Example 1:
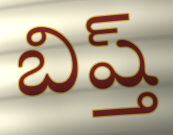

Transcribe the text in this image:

బిష్త్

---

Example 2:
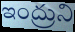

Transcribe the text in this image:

ఇంద్రుని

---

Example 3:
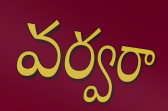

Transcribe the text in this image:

వర్వరా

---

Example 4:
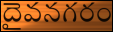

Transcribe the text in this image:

దైవనగరం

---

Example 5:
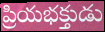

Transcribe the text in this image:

ప్రియభక్తుడు